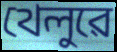
থেলুৱে